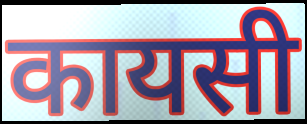
कायसी